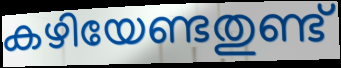
കഴിയേണ്ടതുണ്ട്